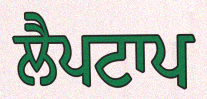
ਲੈਪਟਾਪ